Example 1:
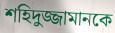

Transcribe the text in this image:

শহিদুজ্জামানকে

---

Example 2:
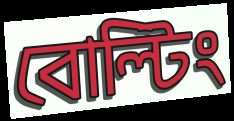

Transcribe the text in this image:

বোল্টিং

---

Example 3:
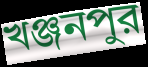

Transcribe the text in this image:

খঞ্জনপুর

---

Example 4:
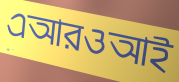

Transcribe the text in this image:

এআরওআই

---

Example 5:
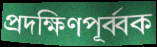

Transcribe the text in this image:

প্রদক্ষিণপূর্ব্বক